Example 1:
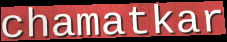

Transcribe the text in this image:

chamatkar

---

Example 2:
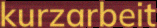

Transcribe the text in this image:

kurzarbeit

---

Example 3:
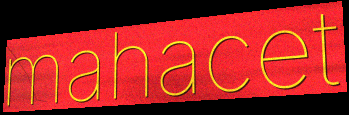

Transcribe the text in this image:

mahacet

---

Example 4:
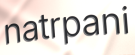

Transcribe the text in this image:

natrpani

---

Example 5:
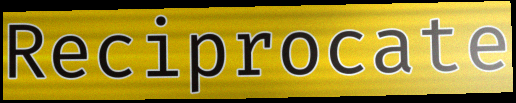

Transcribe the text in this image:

Reciprocate